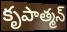
కృపాత్మన్